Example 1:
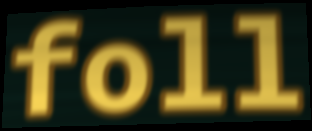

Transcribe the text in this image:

foll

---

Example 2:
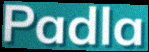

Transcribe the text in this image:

Padla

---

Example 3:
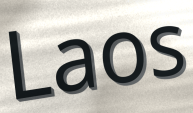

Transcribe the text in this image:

Laos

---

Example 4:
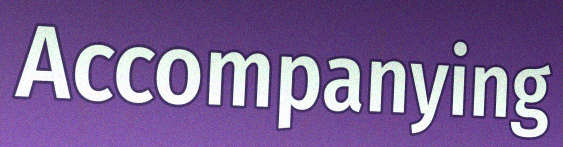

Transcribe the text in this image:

Accompanying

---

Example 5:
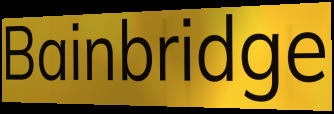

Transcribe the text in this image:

Bainbridge